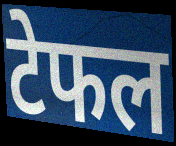
टेफल